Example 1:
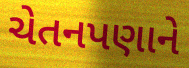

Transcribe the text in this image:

ચેતનપણાને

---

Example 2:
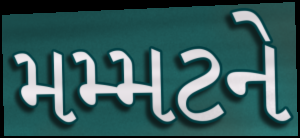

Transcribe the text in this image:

મમ્મટને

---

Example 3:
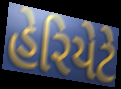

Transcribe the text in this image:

હેરિયેટે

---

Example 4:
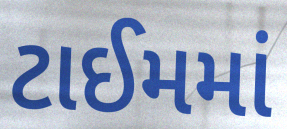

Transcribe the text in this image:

ટાઈમમાં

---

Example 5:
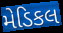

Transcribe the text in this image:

મેડિકલ